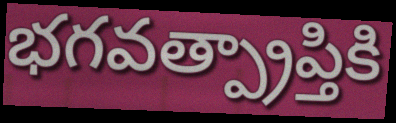
భగవత్ప్రాప్తికి